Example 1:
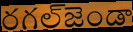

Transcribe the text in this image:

రగల్‌జెండా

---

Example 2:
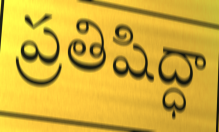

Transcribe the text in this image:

ప్రతిషిద్ధా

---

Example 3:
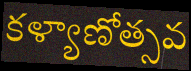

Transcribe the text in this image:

కళ్యాణోత్సవ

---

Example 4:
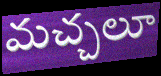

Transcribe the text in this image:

మచ్చలూ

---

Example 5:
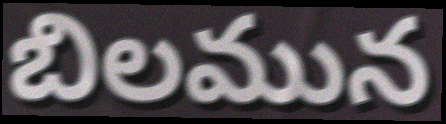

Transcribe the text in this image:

బిలమున